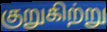
குறுகிற்று